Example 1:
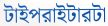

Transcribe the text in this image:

টাইপরাইটারটা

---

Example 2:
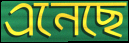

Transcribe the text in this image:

এনেছে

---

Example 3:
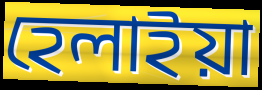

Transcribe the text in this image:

হেলাইয়া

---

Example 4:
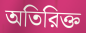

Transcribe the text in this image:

অতিরিক্ত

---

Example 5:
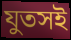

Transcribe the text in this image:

যুতসই